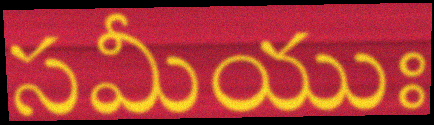
సమీయుః